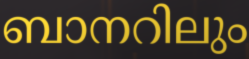
ബാനറിലും